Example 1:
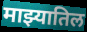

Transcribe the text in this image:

माझ्यातिल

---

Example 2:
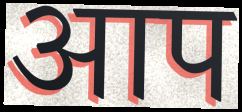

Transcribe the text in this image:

आप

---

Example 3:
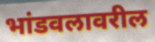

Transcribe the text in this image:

भांडवलावरील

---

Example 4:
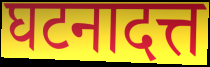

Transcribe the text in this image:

घटनादत्त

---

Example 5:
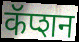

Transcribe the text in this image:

कॅप्शन